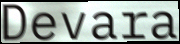
Devara